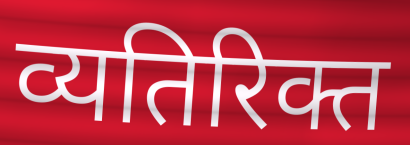
व्यतिरिक्त